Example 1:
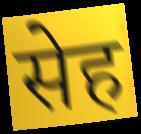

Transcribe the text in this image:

सेह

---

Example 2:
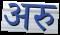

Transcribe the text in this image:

अरु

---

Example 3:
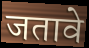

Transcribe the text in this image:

जतावे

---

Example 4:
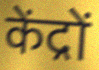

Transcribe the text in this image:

केंद्रों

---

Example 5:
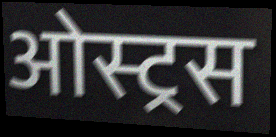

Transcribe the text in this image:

ओस्ट्रस